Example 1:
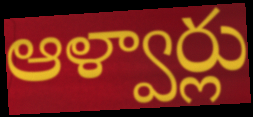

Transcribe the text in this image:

ఆళ్వార్లు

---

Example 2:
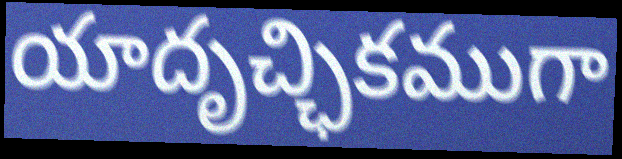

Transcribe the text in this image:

యాదృచ్ఛికముగా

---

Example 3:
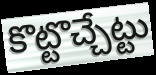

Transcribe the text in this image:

కొట్టొచ్చేట్టు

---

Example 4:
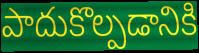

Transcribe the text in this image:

పాదుకొల్పడానికి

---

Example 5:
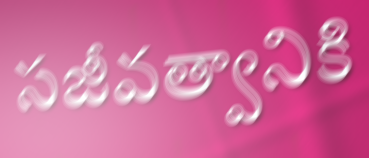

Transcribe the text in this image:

సజీవత్వానికి